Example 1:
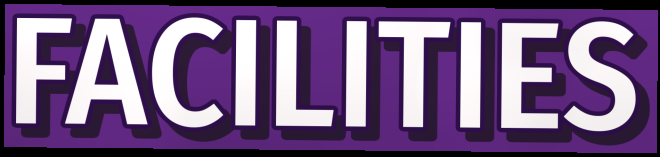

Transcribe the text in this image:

FACILITIES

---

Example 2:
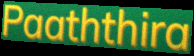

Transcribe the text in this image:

Paaththira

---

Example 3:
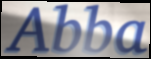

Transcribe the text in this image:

Abba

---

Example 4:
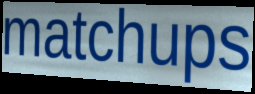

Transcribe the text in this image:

matchups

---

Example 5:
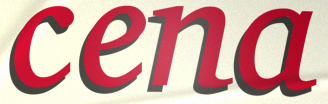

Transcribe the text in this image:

cena